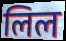
लिल